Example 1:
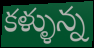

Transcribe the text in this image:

కళ్ళున్న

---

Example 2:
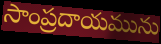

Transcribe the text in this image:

సాంప్రదాయమును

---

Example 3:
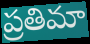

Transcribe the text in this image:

ప్రతిమా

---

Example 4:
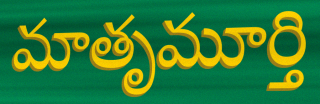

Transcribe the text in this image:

మాతృమూర్తి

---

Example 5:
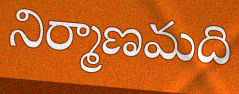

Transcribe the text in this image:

నిర్మాణమది